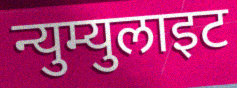
न्युम्युलाइट